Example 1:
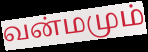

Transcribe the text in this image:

வன்மமும்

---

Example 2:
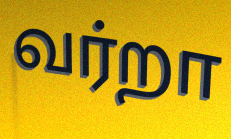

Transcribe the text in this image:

வர்றா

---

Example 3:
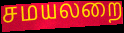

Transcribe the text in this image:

சமயலறை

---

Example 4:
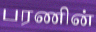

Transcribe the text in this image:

பரணின்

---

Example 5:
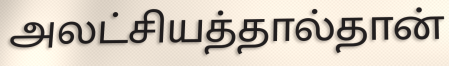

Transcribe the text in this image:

அலட்சியத்தால்தான்